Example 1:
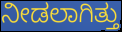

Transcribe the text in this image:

ನೀಡಲಾಗಿತ್ತು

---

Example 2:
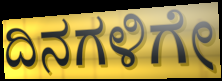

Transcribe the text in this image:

ದಿನಗಳಿಗೇ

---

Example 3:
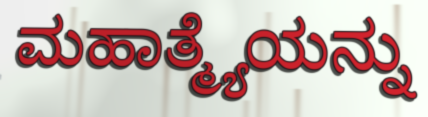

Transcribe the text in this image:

ಮಹಾತ್ಮ್ಯೆಯನ್ನು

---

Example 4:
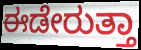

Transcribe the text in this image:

ಈಡೇರುತ್ತಾ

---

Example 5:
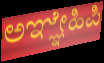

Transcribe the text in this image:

ಅಞ್ಞೇಹಿಪಿ